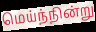
மெய்ந்நின்று